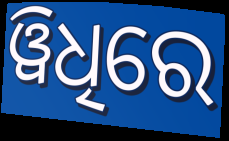
ୱିଧିରେ